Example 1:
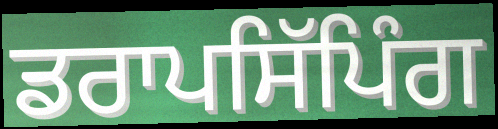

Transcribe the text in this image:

ਡਰਾਪਸਿੱਪਿੰਗ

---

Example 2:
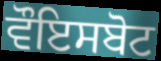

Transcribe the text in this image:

ਵੌਇਸਬੋਟ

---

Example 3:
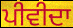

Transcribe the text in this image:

ਪੀਵੀਦਾ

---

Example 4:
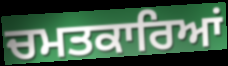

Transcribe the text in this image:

ਚਮਤਕਾਰਿਆਂ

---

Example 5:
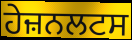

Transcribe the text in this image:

ਹੇਜ਼ਨਲਟਸ